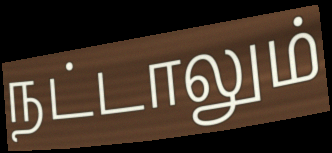
நட்டாலும்